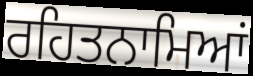
ਰਹਿਤਨਾਮਿਆਂ